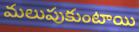
మలుపుకుంటాయి